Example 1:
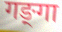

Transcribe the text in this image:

गङ्‍गा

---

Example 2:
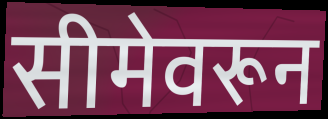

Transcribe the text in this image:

सीमेवरून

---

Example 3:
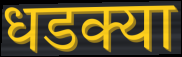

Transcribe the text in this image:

धडक्या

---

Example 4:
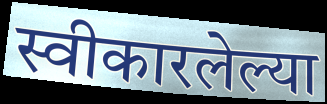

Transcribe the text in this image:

स्वीकारलेल्या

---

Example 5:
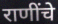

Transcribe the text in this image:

राणींचे